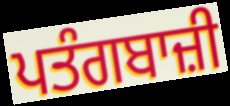
ਪਤੰਗਬਾਜ਼ੀ